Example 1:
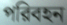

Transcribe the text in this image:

পরিবহন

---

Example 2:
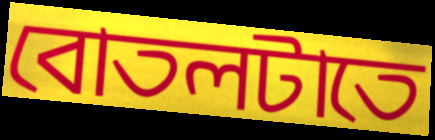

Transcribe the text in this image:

বোতলটাতে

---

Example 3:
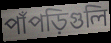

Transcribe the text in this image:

পাঁপড়িগুলি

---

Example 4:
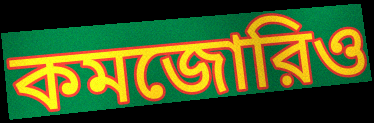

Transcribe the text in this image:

কমজোরিও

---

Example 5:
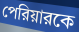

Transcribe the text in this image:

পেরিয়ারকে